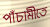
পাঁচামীতে